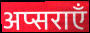
अप्सराएँ